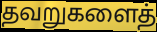
தவறுகளைத்